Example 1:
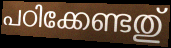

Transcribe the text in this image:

പഠിക്കേണ്ടതു്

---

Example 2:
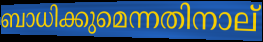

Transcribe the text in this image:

ബാധിക്കുമെന്നതിനാല്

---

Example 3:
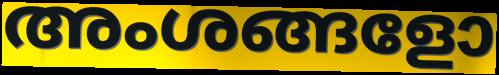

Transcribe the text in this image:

അംശങ്ങളോ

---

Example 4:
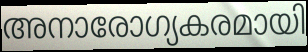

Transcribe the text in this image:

അനാരോഗ്യകരമായി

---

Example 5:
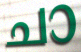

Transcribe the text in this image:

ചാ